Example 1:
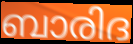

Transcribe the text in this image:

ബാരിദ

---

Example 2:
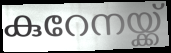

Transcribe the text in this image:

കുറേനയ്ക്ക്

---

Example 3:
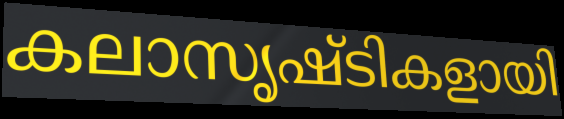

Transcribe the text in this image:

കലാസൃഷ്ടികളായി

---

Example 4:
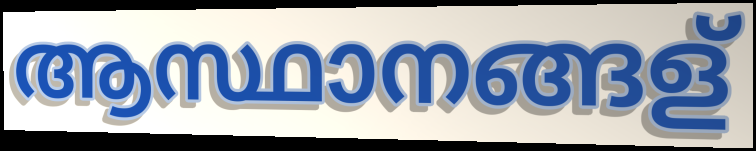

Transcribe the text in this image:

ആസ്ഥാനങ്ങള്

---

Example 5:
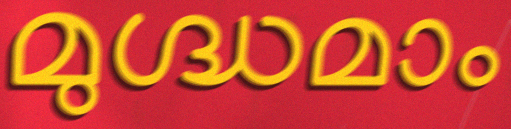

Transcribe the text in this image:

മുഗ്ദ്ധമാം